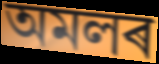
অমলৰ